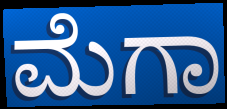
ಮೆಗಾ